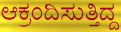
ಆಕ್ರಂದಿಸುತ್ತಿದ್ದ